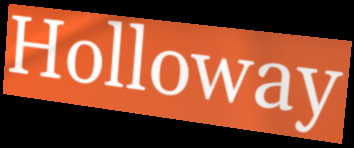
Holloway